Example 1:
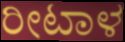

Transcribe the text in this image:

ರೀಟಾಳ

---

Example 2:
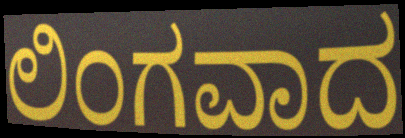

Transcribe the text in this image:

ಲಿಂಗವಾದ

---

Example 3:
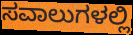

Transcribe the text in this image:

ಸವಾಲುಗಳಲ್ಲಿ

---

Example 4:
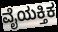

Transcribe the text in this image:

ವೈಯಕ್ತಿಕ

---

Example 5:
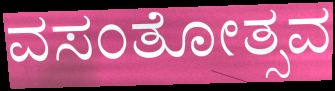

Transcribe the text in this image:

ವಸಂತೋತ್ಸವ